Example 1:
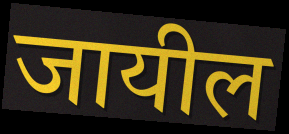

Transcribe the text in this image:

जायील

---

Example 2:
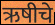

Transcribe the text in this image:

ऋषीचे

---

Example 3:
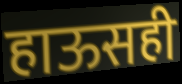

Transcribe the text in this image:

हाऊसही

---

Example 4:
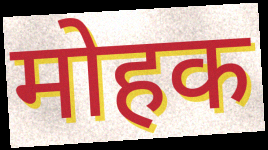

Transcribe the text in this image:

मोहक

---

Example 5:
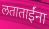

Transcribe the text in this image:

लताताईंना